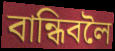
বান্ধিবলৈ